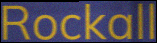
Rockall